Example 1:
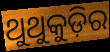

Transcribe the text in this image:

ଥୁଥୁକୁଡ଼ିର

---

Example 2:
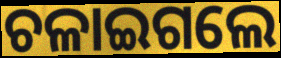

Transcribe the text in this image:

ଚଳାଇଗଲେ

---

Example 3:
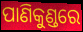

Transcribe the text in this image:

ପାଣିକୁଣ୍ଡରେ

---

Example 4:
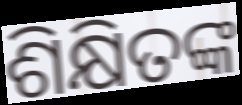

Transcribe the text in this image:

ଶିକ୍ଷିତଙ୍କ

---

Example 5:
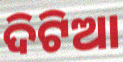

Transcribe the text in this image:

ଦିଟିଆ